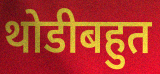
थोडीबहुत